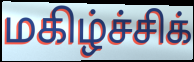
மகிழ்ச்சிக்